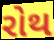
રોથ